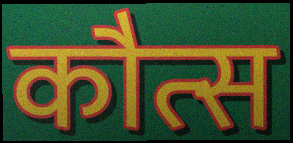
कौत्स